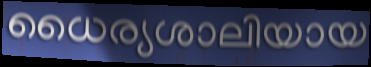
ധൈര്യശാലിയായ